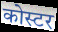
कोस्टर